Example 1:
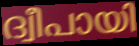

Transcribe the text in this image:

ദ്വീപായി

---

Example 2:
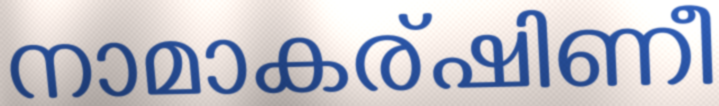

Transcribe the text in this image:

നാമാകര്ഷിണീ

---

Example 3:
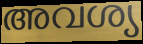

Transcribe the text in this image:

അവശ്യ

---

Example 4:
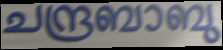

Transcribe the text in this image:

ചന്ദ്രബാബു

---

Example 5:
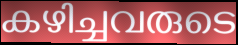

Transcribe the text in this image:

കഴിച്ചവരുടെ